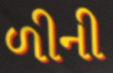
ળીની